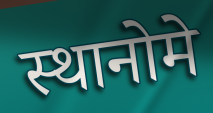
स्थानोमे